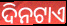
ଦିନଟାଏ